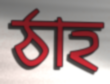
ঠাহ